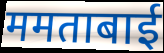
ममताबाई